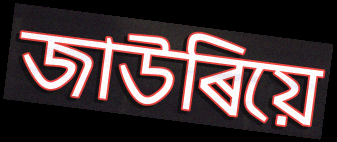
জাউৰিয়ে